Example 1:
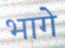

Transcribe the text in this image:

भागे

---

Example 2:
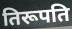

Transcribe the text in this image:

तिरूपति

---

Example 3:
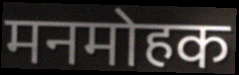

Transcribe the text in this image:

मनमोहक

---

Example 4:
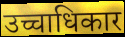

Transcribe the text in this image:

उच्‍चाधिकार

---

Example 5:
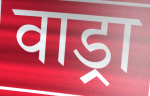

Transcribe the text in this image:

वाड्रा